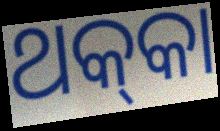
ଥକ୍‍କା